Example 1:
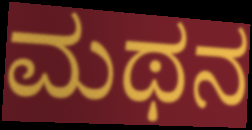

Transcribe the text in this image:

ಮಥನ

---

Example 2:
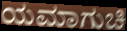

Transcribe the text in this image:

ಯಮಾಗುಚಿ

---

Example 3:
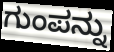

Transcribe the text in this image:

ಗುಂಪನ್ನು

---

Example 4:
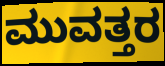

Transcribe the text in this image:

ಮುವತ್ತರ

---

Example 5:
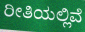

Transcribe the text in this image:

ರೀತಿಯಲ್ಲಿವೆ